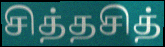
சித்தசித்